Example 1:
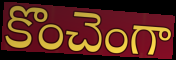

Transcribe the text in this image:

కొంచెంగా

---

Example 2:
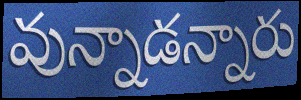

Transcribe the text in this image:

వున్నాడన్నారు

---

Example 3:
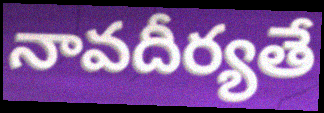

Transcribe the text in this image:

నావదీర్యతే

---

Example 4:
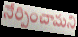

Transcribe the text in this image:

నేర్పించామని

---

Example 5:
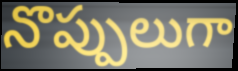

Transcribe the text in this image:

నొప్పులుగా